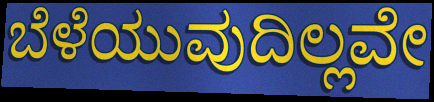
ಬೆಳೆಯುವುದಿಲ್ಲವೇ